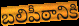
బలిపీఠానికి